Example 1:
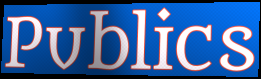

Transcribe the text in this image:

Publics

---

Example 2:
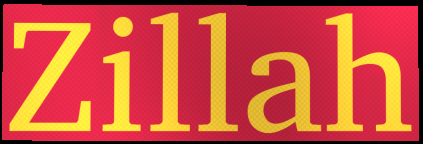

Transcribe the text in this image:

Zillah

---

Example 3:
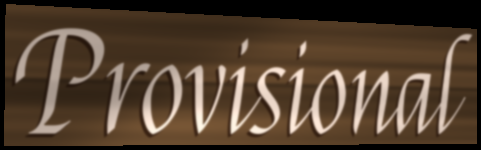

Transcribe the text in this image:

Provisional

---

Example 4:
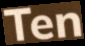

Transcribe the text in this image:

Ten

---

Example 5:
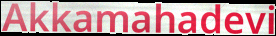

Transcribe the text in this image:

Akkamahadevi